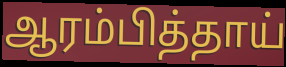
ஆரம்பித்தாய்